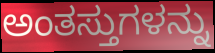
ಅಂತಸ್ತುಗಳನ್ನು